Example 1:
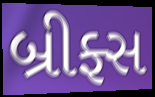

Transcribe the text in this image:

બ્રીફ્સ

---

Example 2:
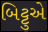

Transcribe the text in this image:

બિટ્ટુએ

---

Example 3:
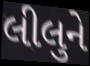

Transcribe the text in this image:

લીલુને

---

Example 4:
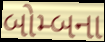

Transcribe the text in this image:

બોમ્બના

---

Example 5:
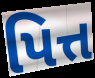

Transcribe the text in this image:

પિત્ત